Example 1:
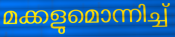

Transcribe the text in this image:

മക്കളുമൊന്നിച്ച്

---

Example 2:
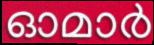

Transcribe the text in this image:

ഓമാർ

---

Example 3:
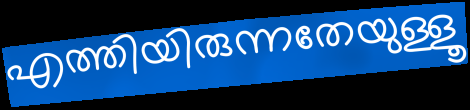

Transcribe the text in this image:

എത്തിയിരുന്നതേയുള്ളൂ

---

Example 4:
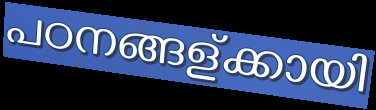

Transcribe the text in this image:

പഠനങ്ങള്ക്കായി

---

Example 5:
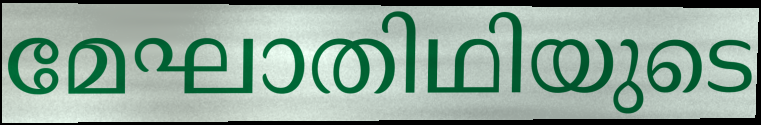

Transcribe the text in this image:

മേഘാതിഥിയുടെ